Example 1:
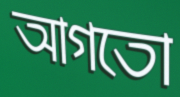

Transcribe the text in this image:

আগতো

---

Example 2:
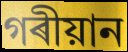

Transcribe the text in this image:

গৰীয়ান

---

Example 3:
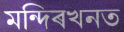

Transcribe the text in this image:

মন্দিৰখনত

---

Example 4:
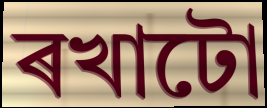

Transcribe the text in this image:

ৰখাটো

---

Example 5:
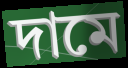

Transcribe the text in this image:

দামে